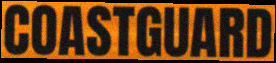
COASTGUARD